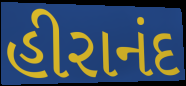
હીરાનંદ